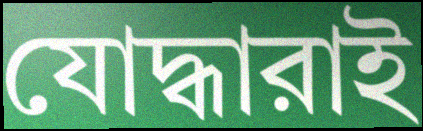
যোদ্ধারাই